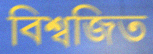
বিশ্বজিত